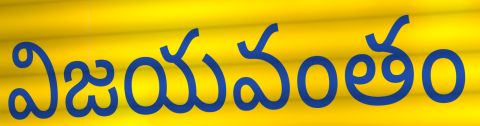
విజయవంతం